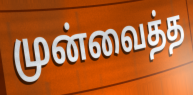
முன்வைத்த